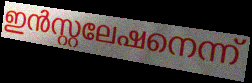
ഇൻസ്റ്റലേഷനെന്ന്